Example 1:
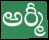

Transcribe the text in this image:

అర్మీ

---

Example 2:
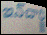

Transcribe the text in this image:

ఇన్‌చార్జ్జి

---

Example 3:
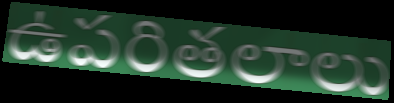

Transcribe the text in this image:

ఉపరితలాలు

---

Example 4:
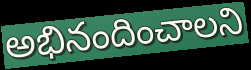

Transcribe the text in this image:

అభినందించాలని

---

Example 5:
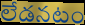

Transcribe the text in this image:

లేడనటం